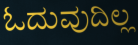
ಓದುವುದಿಲ್ಲ